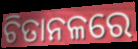
ଚିତାନଳରେ